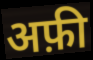
अफ़ी